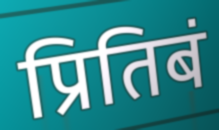
प्रितिबं